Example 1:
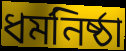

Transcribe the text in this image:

ধর্মনিষ্ঠা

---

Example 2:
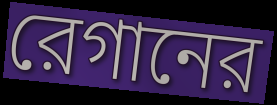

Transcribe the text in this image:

রেগানের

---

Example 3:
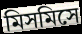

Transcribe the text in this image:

মিসমিসে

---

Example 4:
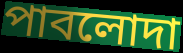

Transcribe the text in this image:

পাবলোদা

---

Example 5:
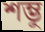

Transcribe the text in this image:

শম্ভু